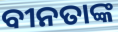
ବୀନତାଙ୍କ